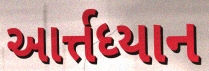
આર્ત્તધ્યાન